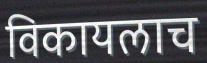
विकायलाच